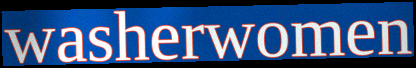
washerwomen